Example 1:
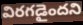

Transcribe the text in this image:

విరగడైందని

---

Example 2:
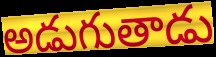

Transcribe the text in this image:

అడుగుతాడు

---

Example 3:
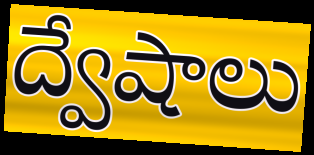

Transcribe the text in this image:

ద్వేషాలు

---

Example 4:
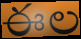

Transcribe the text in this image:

ఈల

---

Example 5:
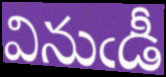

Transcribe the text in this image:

వినుఁడీ